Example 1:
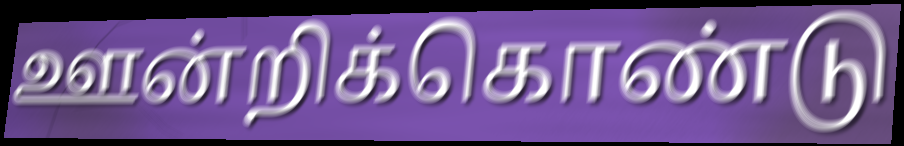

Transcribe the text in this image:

ஊன்றிக்கொண்டு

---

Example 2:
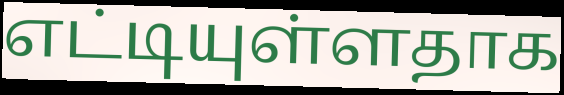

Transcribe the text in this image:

எட்டியுள்ளதாக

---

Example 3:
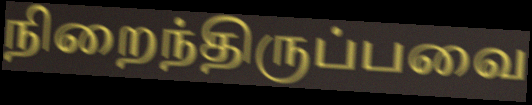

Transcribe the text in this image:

நிறைந்திருப்பவை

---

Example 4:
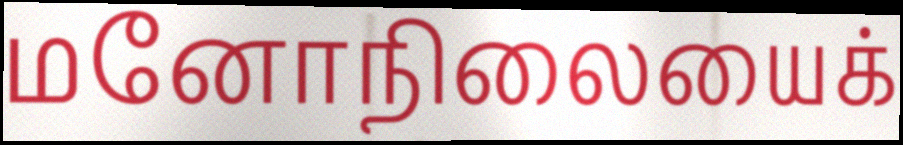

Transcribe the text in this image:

மனோநிலையைக்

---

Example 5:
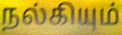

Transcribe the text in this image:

நல்கியும்